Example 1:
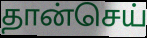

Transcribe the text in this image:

தான்செய்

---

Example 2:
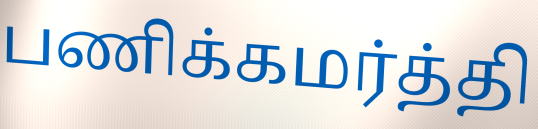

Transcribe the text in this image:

பணிக்கமர்த்தி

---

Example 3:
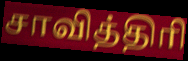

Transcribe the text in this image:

சாவித்திரி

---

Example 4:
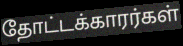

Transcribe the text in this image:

தோட்டக்காரர்கள்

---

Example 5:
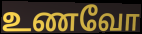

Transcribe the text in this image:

உணவோ